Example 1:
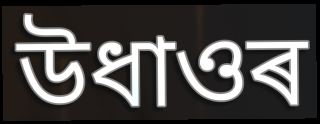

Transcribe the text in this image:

উধাওৰ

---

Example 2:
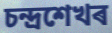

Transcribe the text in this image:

চন্দ্ৰশেখৰ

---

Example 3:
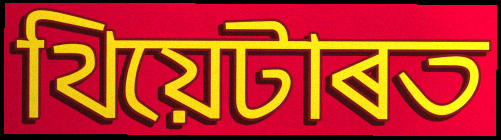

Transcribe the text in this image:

থিয়েটাৰত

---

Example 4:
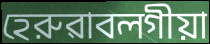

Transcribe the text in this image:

হেৰুৱাবলগীয়া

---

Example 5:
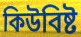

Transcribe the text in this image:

কিউবিষ্ট